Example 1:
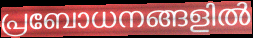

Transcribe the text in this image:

പ്രബോധനങ്ങളിൽ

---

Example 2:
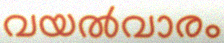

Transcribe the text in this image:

വയൽവാരം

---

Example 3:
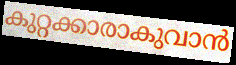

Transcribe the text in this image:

കുറ്റക്കാരാകുവാൻ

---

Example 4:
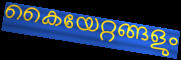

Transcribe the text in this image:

കൈയേറ്റങ്ങളും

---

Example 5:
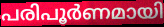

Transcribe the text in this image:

പരിപൂർണമായി